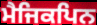
ਮੈਜਿਕਪਿਨ